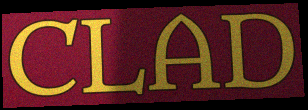
CLAD